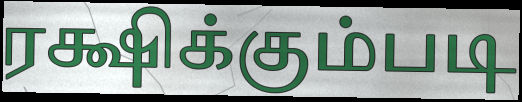
ரக்ஷிக்கும்படி